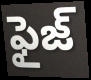
ఫైజ్